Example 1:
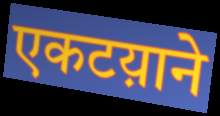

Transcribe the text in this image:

एकटय़ाने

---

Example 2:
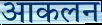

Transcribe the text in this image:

आकलन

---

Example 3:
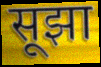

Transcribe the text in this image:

सूझा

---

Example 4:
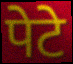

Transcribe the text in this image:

पेटे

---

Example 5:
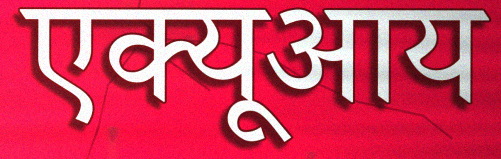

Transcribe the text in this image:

एक्यूआय